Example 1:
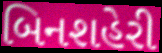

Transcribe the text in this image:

બિનશહેરી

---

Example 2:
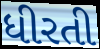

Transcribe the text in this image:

ધીરતી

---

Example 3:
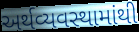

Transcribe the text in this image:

અર્થવ્યવસ્થામાંથી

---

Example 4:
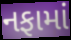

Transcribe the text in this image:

નફામાં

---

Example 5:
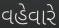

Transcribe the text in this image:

વહેવારે